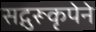
सद्गुरूकृपेने